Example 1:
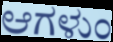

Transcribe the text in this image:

ಆಗಳುಂ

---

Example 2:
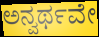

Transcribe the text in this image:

ಅನ್ವರ್ಥವೇ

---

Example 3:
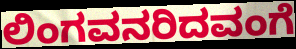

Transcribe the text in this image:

ಲಿಂಗವನರಿದವಂಗೆ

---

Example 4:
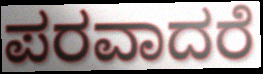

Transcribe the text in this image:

ಪರವಾದರೆ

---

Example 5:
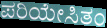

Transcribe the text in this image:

ಪರಿಯೇಸಿತಂ